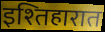
इश्तिहारात